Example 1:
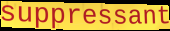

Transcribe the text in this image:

suppressant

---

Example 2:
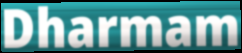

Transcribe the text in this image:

Dharmam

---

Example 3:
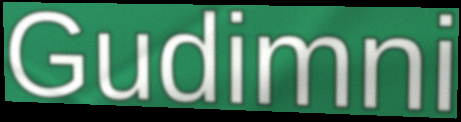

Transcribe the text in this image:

Gudimni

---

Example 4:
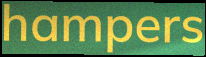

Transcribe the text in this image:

hampers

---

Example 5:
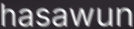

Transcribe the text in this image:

hasawun